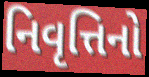
નિવૃત્તિનો